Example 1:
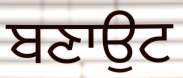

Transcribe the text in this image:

ਬਣਾਉਟ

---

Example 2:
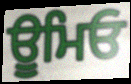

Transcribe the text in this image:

ਊਮਿਓ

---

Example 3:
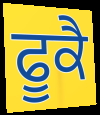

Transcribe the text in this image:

ਫੂਕੈ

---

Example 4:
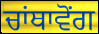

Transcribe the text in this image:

ਚਾਂਥਾਵੋਂਗ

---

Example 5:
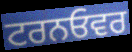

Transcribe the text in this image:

ਟਰਨਓਵਰ